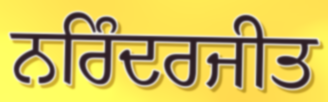
ਨਰਿੰਦਰਜੀਤ